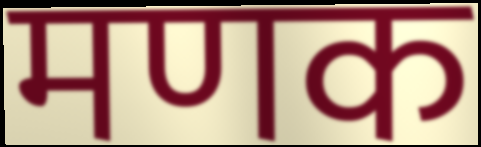
मणक